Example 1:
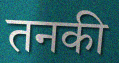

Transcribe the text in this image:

तनकी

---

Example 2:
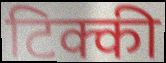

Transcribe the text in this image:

टिक्की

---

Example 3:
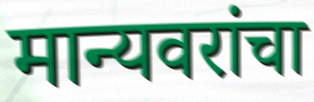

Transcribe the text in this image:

मान्यवरांचा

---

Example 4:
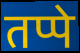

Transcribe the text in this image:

तप्पे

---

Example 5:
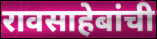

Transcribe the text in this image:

रावसाहेबांची